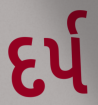
દર્પ